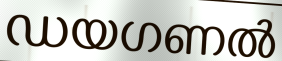
ഡയഗണൽ